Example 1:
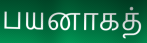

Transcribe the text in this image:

பயனாகத்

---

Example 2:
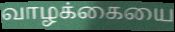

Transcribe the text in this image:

வாழக்கையை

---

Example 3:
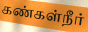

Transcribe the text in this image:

கண்கள்நீர்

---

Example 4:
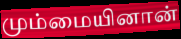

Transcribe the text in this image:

மும்மையினான்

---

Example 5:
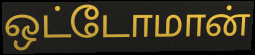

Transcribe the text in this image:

ஒட்டோமான்